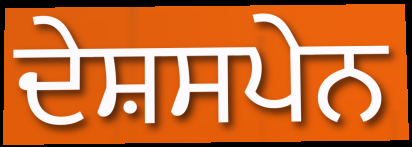
ਦੇਸ਼ਸਪੇਨ